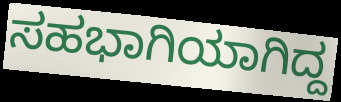
ಸಹಭಾಗಿಯಾಗಿದ್ದ